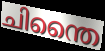
ചിന്തൈ